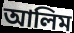
আলিম